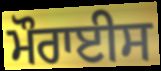
ਮੌਰਾਈਸ